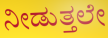
ನೀಡುತ್ತಲೇ